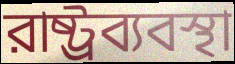
রাষ্ট্রব্যবস্থা